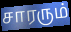
சாரரும்